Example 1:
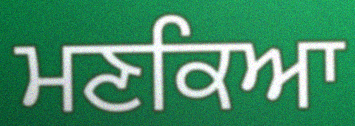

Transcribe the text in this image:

ਮਣਕਿਆ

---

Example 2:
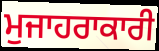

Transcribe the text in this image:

ਮੁਜਾਹਰਾਕਾਰੀ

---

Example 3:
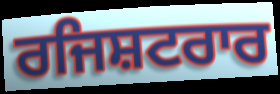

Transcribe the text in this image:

ਰਜਿਸ਼ਟਰਾਰ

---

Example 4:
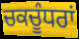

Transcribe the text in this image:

ਚਕਚੂੰਧਰਾਂ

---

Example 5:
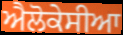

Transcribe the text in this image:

ਐਲੋਕੇਸੀਆ